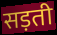
सड़ती